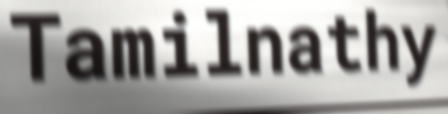
Tamilnathy